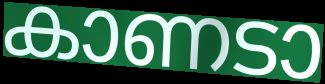
കാണടാ